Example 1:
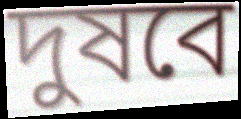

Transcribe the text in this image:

দুষবে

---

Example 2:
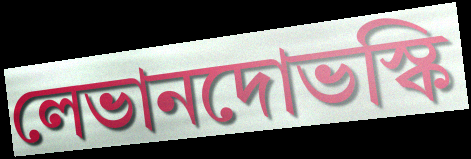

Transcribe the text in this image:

লেভানদোভস্কি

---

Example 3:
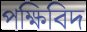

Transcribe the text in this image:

পক্ষিবিদ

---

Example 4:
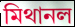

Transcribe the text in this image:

মিথানল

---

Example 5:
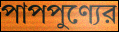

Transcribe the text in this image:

পাপপুণ্যের